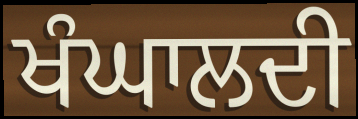
ਖੰਘਾਲਦੀ